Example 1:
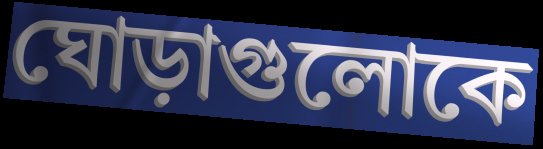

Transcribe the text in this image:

ঘোড়াগুলোকে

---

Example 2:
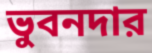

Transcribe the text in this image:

ভুবনদার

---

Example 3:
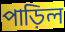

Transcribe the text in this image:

পাড়িল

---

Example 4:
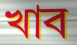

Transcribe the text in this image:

খাব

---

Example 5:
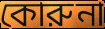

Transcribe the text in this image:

কোরুনা